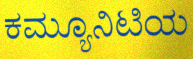
ಕಮ್ಯೂನಿಟಿಯ